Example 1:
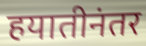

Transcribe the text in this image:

हयातीनंतर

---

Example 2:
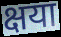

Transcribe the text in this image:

क्षया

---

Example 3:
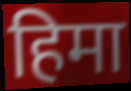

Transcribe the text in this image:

हिमा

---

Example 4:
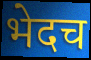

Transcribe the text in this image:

भेदच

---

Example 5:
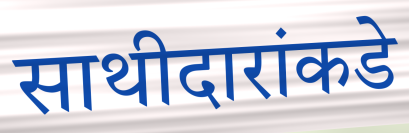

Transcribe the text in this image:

साथीदारांकडे